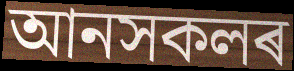
আনসকলৰ